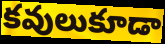
కవులుకూడా